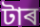
টাৰ